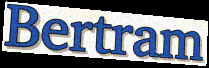
Bertram